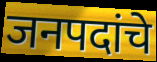
जनपदांचे